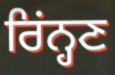
ਰਿਂਨ੍ਹਣ